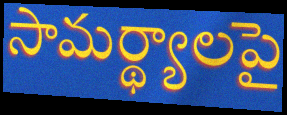
సామర్థ్యాలపై